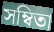
সম্বিতা